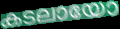
കടലായോ